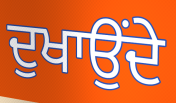
ਦੁਖਾਉਂਦੇ